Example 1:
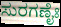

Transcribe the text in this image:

ಸುರಗಣೈಃ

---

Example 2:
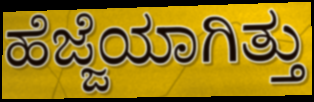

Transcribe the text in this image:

ಹೆಜ್ಜೆಯಾಗಿತ್ತು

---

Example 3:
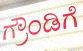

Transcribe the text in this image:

ಗ್ರೌಂಡಿಗೆ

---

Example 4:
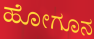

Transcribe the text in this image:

ಹೋಗೂನ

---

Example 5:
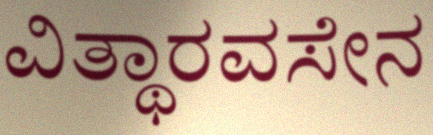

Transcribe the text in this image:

ವಿತ್ಥಾರವಸೇನ